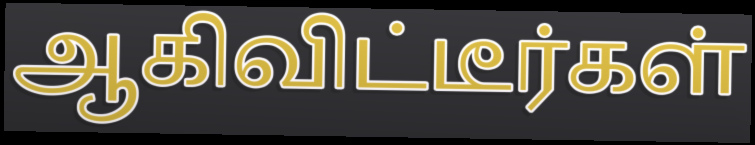
ஆகிவிட்டீர்கள்